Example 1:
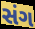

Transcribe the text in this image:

સંગ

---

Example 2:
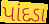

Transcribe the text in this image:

પાંદડા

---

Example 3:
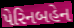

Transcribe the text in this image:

પેરિનબહેન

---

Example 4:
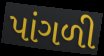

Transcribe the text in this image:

પાંગળી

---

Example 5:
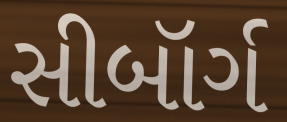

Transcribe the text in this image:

સીબૉર્ગ